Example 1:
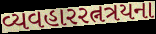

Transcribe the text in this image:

વ્યવહારરત્નત્રયના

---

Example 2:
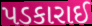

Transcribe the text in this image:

પડકારાઈ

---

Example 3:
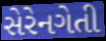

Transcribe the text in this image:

સેરેનગેતી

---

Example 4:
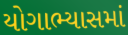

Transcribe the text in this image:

યોગાભ્યાસમાં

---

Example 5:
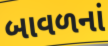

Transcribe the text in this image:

બાવળનાં